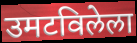
उमटविलेला